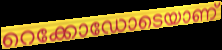
റെക്കോഡോടെയാണ്